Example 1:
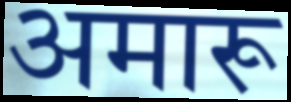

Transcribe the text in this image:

अमारू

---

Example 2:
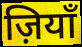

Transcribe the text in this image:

ज़ियाँ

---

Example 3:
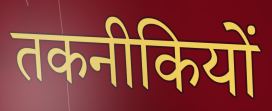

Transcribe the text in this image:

तकनीकियों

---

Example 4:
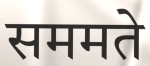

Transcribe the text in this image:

सममते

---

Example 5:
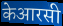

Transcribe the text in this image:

केआरसी